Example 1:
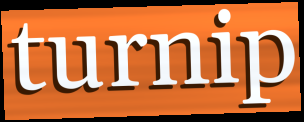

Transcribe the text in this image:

turnip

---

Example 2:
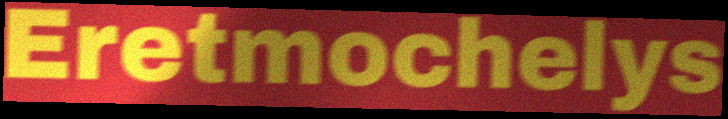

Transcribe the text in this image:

Eretmochelys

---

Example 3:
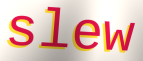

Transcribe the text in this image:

slew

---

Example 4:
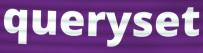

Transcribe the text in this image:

queryset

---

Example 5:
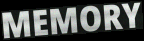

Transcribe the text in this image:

MEMORY